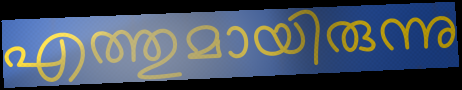
എത്തുമായിരുന്നു